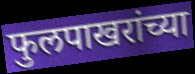
फुलपाखरांच्या